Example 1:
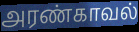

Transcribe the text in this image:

அரண்காவல்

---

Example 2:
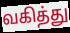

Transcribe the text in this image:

வகித்து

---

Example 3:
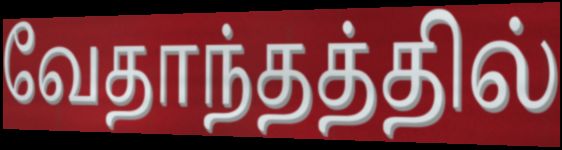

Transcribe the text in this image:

வேதாந்தத்தில்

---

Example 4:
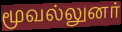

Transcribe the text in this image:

மூவல்லுனர்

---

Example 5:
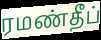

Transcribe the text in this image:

ரமண்தீப்